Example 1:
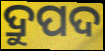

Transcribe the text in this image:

ଦ୍ରୁପଦ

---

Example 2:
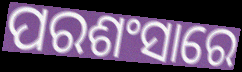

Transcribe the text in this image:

ପରଶଂସାରେ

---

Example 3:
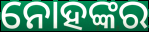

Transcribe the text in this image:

ନୋହଙ୍କର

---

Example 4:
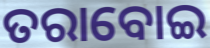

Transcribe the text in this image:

ତରାବୋଇ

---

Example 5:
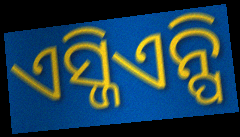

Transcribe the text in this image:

ଏସ୍ଜିଏନ୍ପି